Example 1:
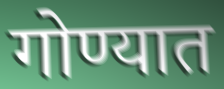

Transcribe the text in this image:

गोण्यात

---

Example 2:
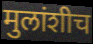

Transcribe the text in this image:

मुलांशीच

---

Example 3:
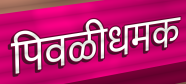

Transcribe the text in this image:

पिवळीधमक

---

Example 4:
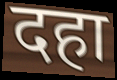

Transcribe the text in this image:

दहा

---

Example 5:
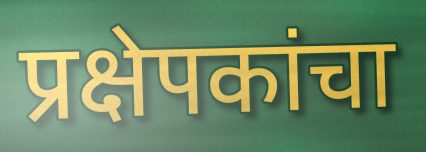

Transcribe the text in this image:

प्रक्षेपकांचा